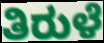
ತಿರುಳೆ